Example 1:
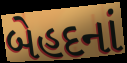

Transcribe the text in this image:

બેહદનાં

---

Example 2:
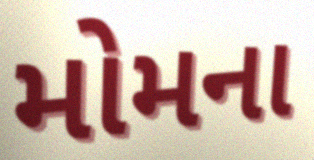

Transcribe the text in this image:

મોમના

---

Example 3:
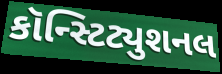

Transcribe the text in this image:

કૉન્સ્ટિટ્યુશનલ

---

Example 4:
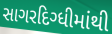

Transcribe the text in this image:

સાગરદિગ્ધીમાંથી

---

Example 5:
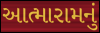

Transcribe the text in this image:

આત્મારામનું